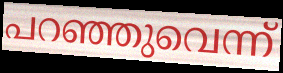
പറഞ്ഞുവെന്ന്